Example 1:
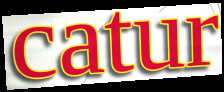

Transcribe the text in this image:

catur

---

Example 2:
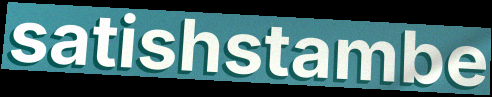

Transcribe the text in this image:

satishstambe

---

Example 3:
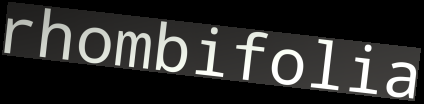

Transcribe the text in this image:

rhombifolia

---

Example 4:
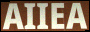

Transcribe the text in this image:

AIIEA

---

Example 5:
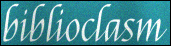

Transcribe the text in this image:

biblioclasm